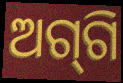
ଅଗ୍‌ଗି